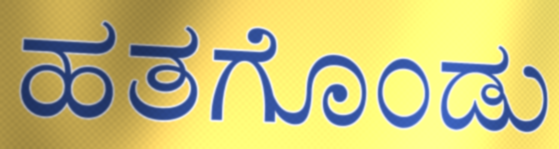
ಹತಗೊಂಡು